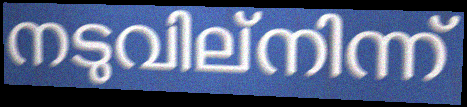
നടുവില്നിന്ന്